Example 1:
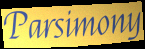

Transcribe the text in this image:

Parsimony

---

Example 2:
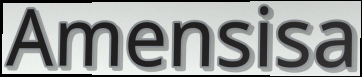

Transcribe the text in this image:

Amensisa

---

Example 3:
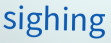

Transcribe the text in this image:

sighing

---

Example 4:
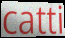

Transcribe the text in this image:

catti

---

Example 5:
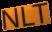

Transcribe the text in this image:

NLT